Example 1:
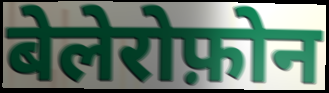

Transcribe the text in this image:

बेलेरोफ़ोन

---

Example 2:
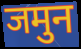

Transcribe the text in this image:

जमुन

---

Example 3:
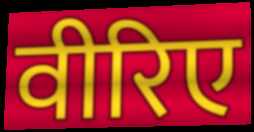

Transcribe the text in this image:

वीरिए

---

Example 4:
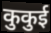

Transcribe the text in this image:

कुकुई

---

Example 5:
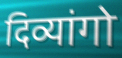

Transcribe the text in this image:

दिव्यांगो